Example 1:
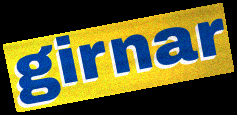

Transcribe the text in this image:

girnar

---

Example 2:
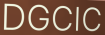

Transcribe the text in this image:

DGCIC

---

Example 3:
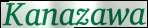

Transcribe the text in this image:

Kanazawa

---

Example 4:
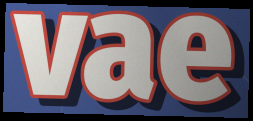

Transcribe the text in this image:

vae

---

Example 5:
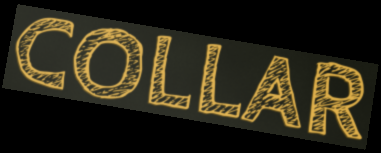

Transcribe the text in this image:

COLLAR